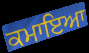
ਕਮਾਇਆ